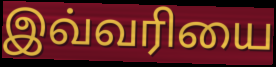
இவ்வரியை